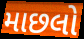
માછલો